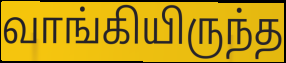
வாங்கியிருந்த